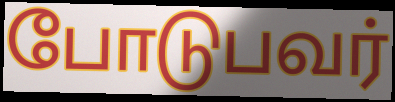
போடுபவர்